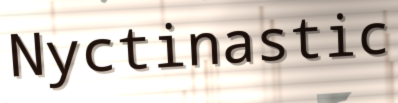
Nyctinastic